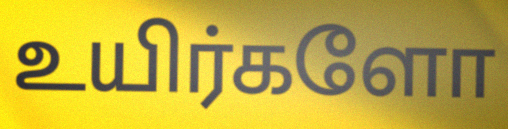
உயிர்களோ